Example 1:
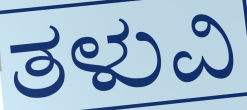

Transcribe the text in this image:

ತಳುವಿ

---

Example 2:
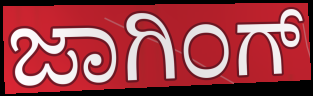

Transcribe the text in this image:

ಜಾಗಿಂಗ್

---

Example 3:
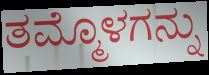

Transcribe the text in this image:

ತಮ್ಮೊಳಗನ್ನು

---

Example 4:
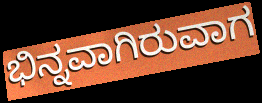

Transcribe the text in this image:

ಭಿನ್ನವಾಗಿರುವಾಗ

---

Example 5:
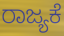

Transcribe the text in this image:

ರಾಜ್ಯಕೆ